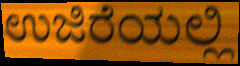
ಉಜಿರೆಯಲ್ಲಿ